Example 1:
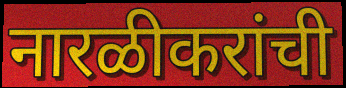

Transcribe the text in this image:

नारळीकरांची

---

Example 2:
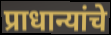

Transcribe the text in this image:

प्राधान्यांचे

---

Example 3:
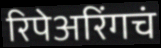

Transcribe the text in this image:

रिपेअरिंगचं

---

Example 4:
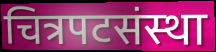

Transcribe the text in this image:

चित्रपटसंस्था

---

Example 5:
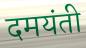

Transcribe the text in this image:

दमयंती